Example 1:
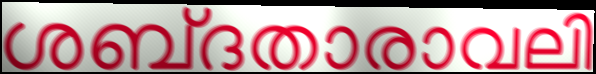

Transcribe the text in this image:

ശബ്‌ദതാരാവലി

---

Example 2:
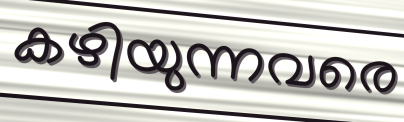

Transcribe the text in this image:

കഴിയുന്നവരെ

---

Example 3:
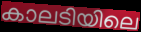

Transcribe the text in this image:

കാലടിയിലെ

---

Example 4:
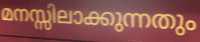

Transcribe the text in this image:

മനസ്സിലാക്കുന്നതും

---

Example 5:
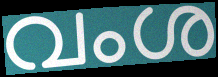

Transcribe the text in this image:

വംശ